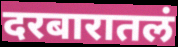
दरबारातलं